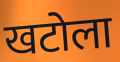
खटोला